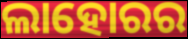
ଲାହୋରର